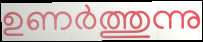
ഉണർത്തുന്നു